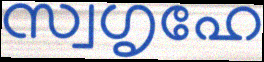
സ്വഗൃഹേ